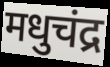
मधुचंद्र